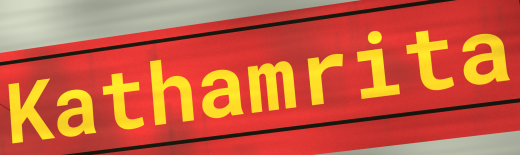
Kathamrita